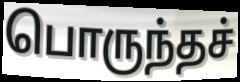
பொருந்தச்